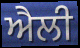
ਐਲੀ